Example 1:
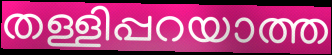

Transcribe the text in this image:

തള്ളിപ്പറയാത്ത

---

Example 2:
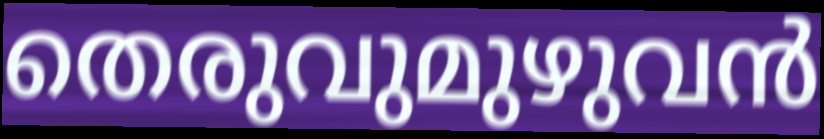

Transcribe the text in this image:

തെരുവുമുഴുവൻ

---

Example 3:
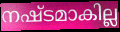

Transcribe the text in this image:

നഷ്ടമാകില്ല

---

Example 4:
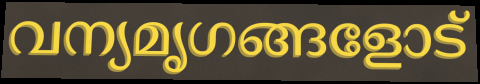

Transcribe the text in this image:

വന്യമൃഗങ്ങളോട്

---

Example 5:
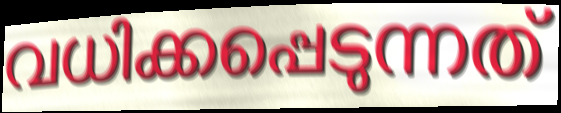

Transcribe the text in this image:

വധിക്കപ്പെടുന്നത്